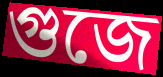
গুজে